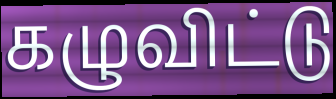
கழுவிட்டு